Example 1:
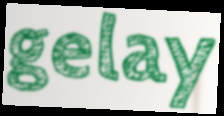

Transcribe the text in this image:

gelay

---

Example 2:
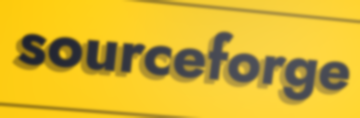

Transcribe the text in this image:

sourceforge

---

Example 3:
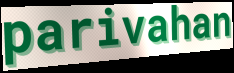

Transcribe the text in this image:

parivahan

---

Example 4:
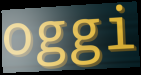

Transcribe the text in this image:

oggi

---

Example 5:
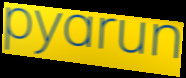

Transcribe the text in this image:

pyarun